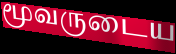
மூவருடைய